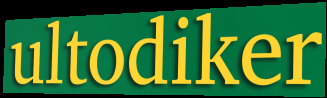
ultodiker